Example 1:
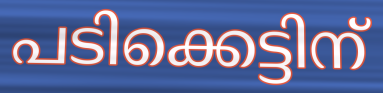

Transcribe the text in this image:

പടിക്കെട്ടിന്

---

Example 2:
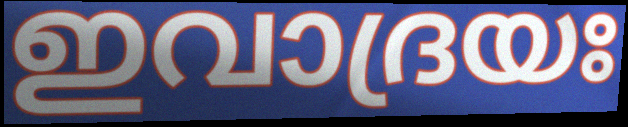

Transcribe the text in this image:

ഇവാദ്രയഃ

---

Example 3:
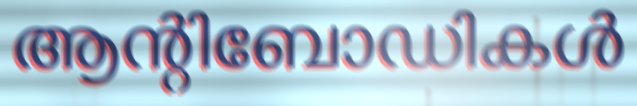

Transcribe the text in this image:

ആന്റിബോഡികൾ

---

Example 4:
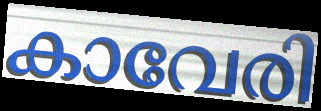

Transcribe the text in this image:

കാവേരി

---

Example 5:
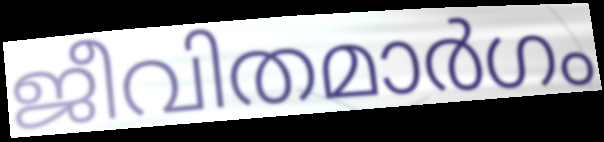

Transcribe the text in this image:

ജീവിതമാർഗം